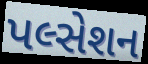
પલ્સેશન